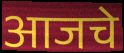
आजचे